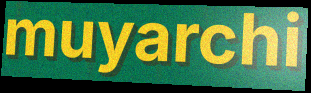
muyarchi